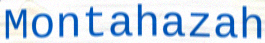
Montahazah